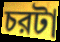
চরটা